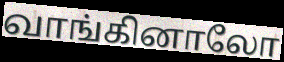
வாங்கினாலோ